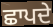
ਛਾਪਦੇ